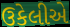
ઉકેલીએ